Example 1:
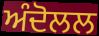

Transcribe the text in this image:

ਅੰਦੋਲਲ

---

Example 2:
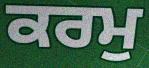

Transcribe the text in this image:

ਕਰਮੁ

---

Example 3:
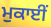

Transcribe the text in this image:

ਮੁਕਾਈਂ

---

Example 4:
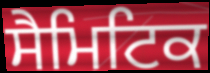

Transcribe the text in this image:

ਸੈਮਿਟਿਕ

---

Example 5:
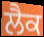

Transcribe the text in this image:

ਲੈਕ